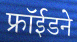
फ्रॉईडने